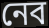
নেব